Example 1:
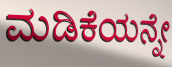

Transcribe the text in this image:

ಮಡಿಕೆಯನ್ನೇ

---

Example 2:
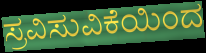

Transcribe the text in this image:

ಸ್ರವಿಸುವಿಕೆಯಿಂದ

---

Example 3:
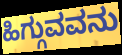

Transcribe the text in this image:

ಹಿಗ್ಗುವವನು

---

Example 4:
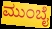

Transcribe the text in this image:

ಮುಂಬೈ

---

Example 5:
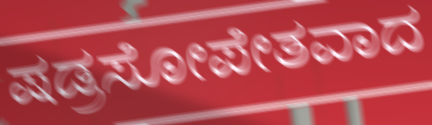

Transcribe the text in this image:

ಷಡ್ರಸೋಪೇತವಾದ